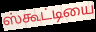
ஸ்கூட்டியை